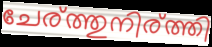
ചേര്ത്തുനിര്ത്തി